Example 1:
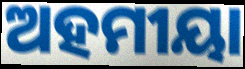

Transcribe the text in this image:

ଅହମୀୟା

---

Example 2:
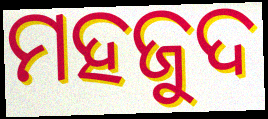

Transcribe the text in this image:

ମହଜୁଦ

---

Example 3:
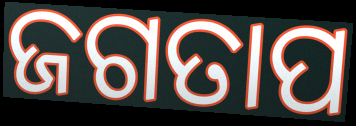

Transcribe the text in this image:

ଜଗତାପ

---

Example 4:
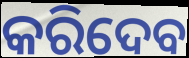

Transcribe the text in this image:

କରିଦେବ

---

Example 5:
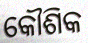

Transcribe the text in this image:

କୌଶିକ